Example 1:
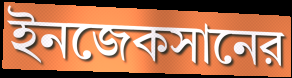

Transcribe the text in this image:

ইনজেকসানের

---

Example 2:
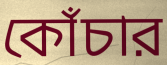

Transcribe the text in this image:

কোঁচার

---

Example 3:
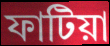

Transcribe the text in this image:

ফাটিয়া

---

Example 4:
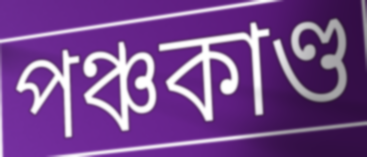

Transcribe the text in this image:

পঞ্চকাণ্ড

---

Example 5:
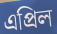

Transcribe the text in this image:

এপ্রিল